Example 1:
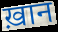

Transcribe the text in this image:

ख़ान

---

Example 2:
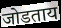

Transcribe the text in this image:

जोडताय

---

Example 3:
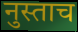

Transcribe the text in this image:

नुस्ताच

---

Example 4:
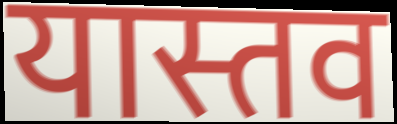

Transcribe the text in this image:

यास्तव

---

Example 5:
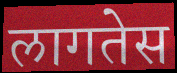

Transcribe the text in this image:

लागतेस